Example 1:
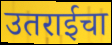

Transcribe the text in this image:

उतराईचा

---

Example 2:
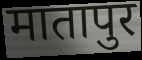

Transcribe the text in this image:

मातापुर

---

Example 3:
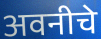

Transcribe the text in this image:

अवनीचे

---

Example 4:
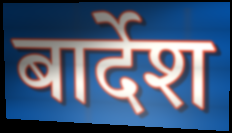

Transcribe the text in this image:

बार्देश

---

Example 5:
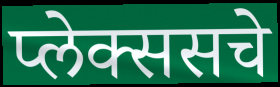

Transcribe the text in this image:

प्लेक्ससचे